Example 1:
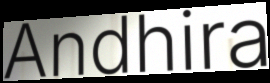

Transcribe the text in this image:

Andhira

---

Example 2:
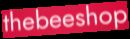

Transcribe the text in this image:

thebeeshop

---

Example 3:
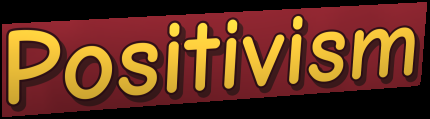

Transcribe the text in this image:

Positivism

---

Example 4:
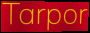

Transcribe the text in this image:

Tarpor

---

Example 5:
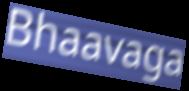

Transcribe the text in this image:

Bhaavaga